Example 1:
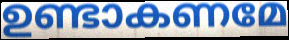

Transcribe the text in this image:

ഉണ്ടാകണമേ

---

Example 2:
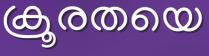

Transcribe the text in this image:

ക്രൂരതയെ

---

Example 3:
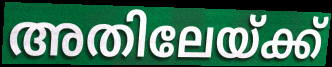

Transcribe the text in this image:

അതിലേയ്ക്ക്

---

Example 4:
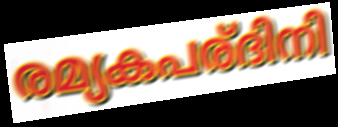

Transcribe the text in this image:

രമ്യകപര്ദിനി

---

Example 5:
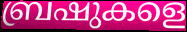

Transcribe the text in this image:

ബ്രഷുകളെ